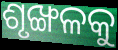
ଶୃଙ୍ଖଳକୁ